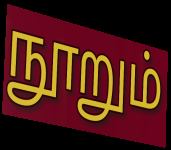
நூறும்